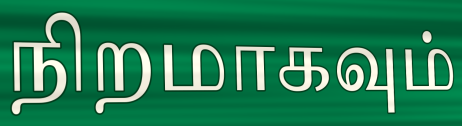
நிறமாகவும்